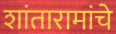
शांतारामांचे